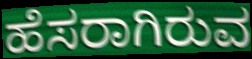
ಹೆಸರಾಗಿರುವ